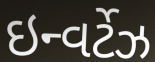
ઇન્વર્ટેઝ